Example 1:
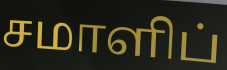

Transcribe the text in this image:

சமாளிப்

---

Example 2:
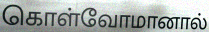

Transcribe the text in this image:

கொள்வோமானால்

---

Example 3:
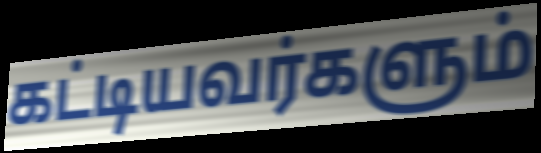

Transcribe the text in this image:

கட்டியவர்களும்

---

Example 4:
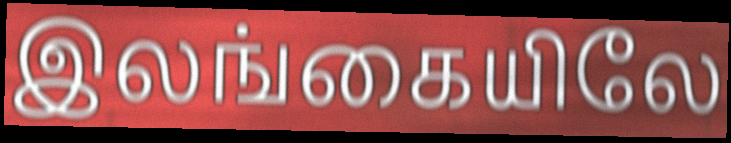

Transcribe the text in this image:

இலங்கையிலே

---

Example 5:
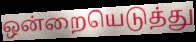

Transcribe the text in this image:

ஒன்றையெடுத்து